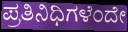
ಪ್ರತಿನಿಧಿಗಳೆಂದೇ